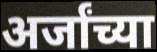
अर्जांच्या